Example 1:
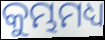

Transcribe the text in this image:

କୁମ୍ଭମଧ୍ୟ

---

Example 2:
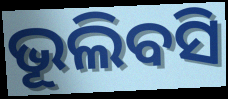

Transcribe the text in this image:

ଭୂଲିବସି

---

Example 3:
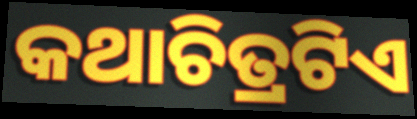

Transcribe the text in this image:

କଥାଚିତ୍ରଟିଏ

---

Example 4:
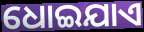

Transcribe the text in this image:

ଧୋଇଯାଏ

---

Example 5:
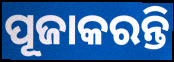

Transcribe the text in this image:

ପୂଜାକରନ୍ତି